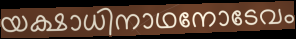
യക്ഷാധിനാഥനോടേവം